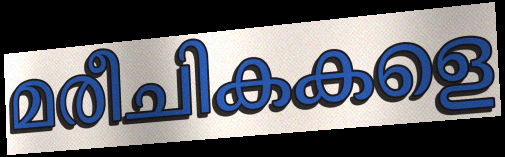
മരീചികകളെ